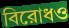
বিরোধও